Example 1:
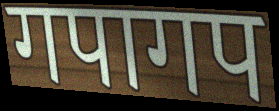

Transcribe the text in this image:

गपागप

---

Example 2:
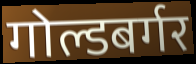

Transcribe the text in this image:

गोल्डबर्गर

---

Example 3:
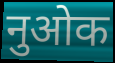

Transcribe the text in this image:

नुओक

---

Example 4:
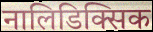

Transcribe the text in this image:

नालिडिक्सिक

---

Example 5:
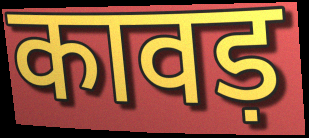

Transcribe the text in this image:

कावड़